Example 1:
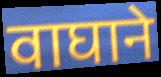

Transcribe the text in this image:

वाघाने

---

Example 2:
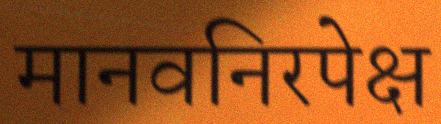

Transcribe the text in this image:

मानवनिरपेक्ष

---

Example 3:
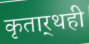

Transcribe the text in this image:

कृतार्थही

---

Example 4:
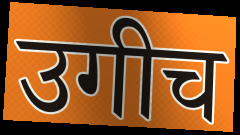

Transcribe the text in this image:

उगीच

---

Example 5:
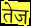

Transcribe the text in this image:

तेज